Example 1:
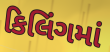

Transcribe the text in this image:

કિલિંગમાં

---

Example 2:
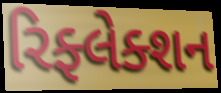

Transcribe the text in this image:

રિફ્લેક્શન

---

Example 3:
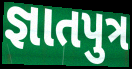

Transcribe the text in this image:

જ્ઞાતપુત્ર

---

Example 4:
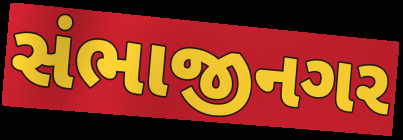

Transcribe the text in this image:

સંભાજીનગર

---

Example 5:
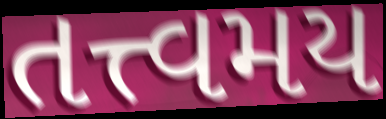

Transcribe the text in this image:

તત્ત્વમય